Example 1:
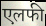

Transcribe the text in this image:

एलफी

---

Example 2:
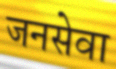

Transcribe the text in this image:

जनसेवा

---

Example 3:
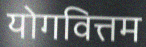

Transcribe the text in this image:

योगवित्तम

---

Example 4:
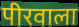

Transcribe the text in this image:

पीरवाला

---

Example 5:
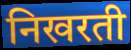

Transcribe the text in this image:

निखरती